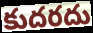
కుదరదు